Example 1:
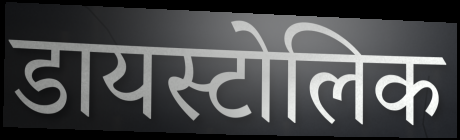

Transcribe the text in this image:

डायस्टोलिक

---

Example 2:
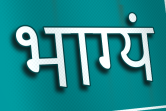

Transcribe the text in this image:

भाग्यं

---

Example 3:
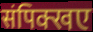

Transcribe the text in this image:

संपिक्खए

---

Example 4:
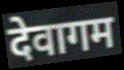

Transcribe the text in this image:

देवागम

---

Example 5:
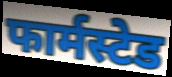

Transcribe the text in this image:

फार्मस्टेड